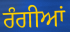
ਰੰਗੀਆਂ